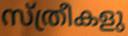
സ്ത്രീകളു